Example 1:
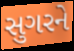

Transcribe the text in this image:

સુગરને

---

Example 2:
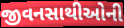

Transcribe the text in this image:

જીવનસાથીઓની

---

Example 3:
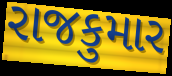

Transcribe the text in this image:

રાજકુમાર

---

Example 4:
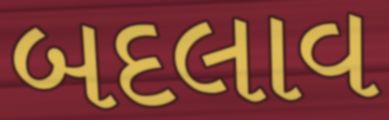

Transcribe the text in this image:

બદલાવ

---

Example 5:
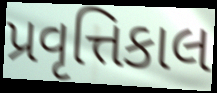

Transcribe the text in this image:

પ્રવૃત્તિકાલ